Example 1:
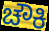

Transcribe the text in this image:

ಚೌಕಿ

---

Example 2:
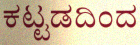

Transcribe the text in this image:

ಕಟ್ಟಡದಿಂದ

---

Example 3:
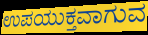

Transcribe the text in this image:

ಉಪಯುಕ್ತವಾಗುವ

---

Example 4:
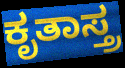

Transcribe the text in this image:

ಕೃತಾಸ್ತ್ರ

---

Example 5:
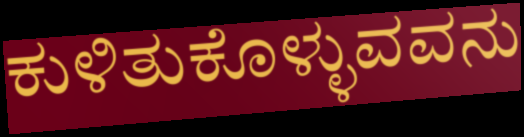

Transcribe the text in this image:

ಕುಳಿತುಕೊಳ್ಳುವವನು